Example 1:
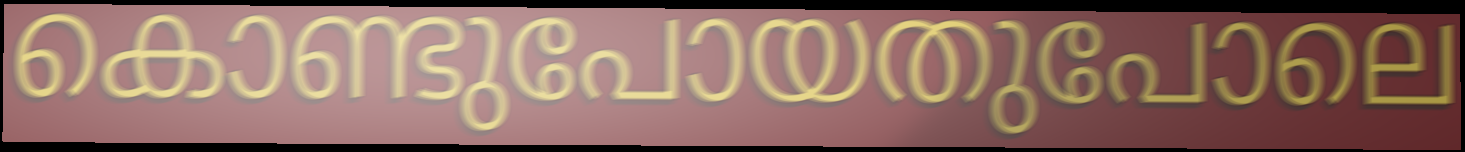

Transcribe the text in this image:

കൊണ്ടുപോയതുപോലെ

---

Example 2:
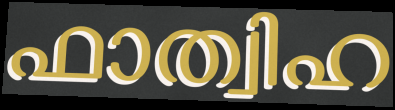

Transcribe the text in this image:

ഫാത്വിഹ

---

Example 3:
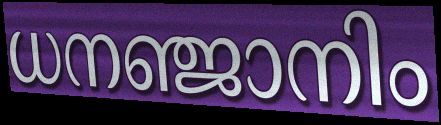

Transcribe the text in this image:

ധനഞ്ജാനിം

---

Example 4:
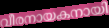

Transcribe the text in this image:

വീരനായകനായി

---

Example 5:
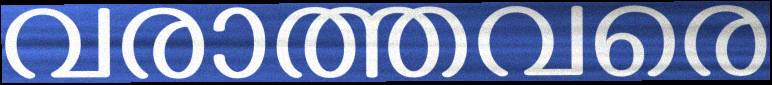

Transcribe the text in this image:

വരാത്തവരെ